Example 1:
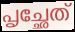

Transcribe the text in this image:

പൃച്ഛേത്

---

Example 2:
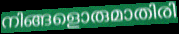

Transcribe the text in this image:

നിങ്ങളൊരുമാതിരി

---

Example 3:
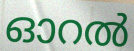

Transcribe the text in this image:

ഓറൽ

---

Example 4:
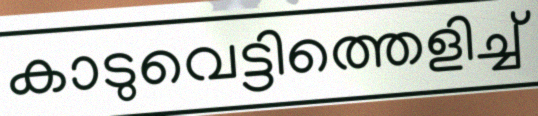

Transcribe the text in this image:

കാടുവെട്ടിത്തെളിച്ച്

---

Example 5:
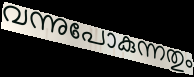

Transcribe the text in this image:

വന്നുപോകുന്നതും